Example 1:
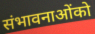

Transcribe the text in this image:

संभावनाओंको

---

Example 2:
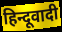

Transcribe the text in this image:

हिन्दूवादी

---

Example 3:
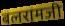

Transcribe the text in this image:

बलरामजी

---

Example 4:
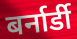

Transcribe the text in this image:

बर्नार्डी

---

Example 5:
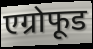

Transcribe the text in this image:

एग्रोफूड